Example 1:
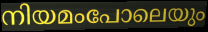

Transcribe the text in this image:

നിയമംപോലെയും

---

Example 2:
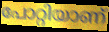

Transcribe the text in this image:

പോറ്റിയാണ്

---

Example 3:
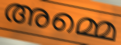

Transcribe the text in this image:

അമ്മെ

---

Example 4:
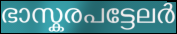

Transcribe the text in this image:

ഭാസ്കരപട്ടേലർ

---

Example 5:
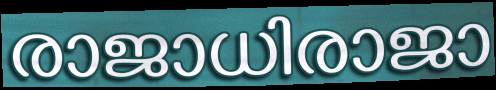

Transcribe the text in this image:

രാജാധിരാജാ